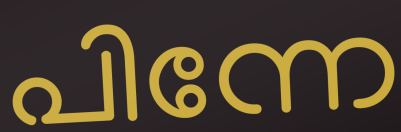
പിന്നേ